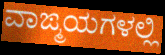
ವಾಙ್ಮಯಗಳಲ್ಲಿ